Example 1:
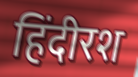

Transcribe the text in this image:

हिंदीरश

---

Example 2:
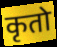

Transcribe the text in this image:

कृतो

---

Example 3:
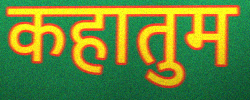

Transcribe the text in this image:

कहातुम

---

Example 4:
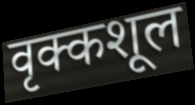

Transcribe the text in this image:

वृक्कशूल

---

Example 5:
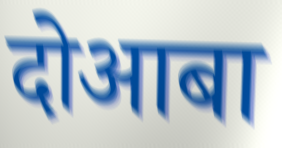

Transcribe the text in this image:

दोआबा